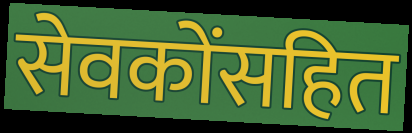
सेवकोंसहित